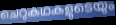
ചെറുകഥകളുടെയും